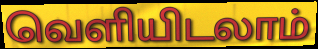
வெளியிடலாம்